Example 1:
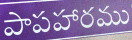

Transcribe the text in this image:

పాపహారము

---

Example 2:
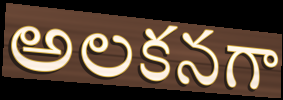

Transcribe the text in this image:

అలకనగా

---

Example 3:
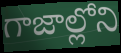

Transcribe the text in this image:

గాజాల్లోని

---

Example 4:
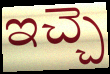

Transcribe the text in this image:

ఇచ్చె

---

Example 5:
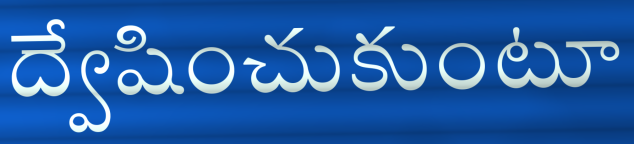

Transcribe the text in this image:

ద్వేషించుకుంటూ